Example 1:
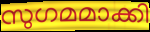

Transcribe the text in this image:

സുഗമമാക്കി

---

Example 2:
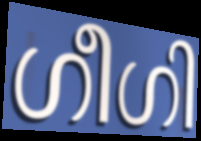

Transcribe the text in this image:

ഗീഗി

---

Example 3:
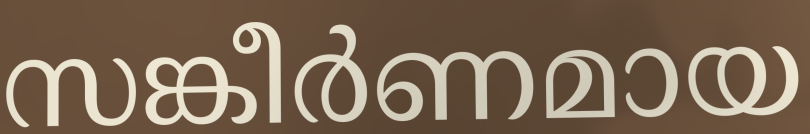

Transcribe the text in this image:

സങ്കീർണമായ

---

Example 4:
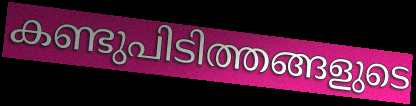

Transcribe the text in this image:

കണ്ടുപിടിത്തങ്ങളുടെ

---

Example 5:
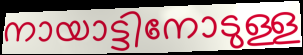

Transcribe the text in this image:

നായാട്ടിനോടുള്ള